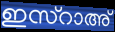
ഇസ്റാഅ്